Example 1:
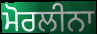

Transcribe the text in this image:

ਮੋਰਲੀਨਾ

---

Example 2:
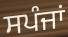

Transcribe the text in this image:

ਸਪੰਜਾਂ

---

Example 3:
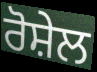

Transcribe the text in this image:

ਰੋਸ਼ੇਲ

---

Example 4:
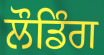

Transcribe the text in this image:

ਲੌਡਿੰਗ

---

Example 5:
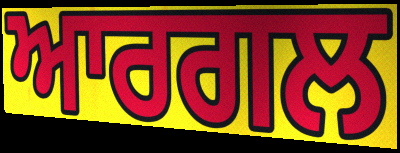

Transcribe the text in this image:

ਆਰਗਲ